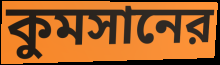
কুমসানের